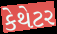
કેથેટર